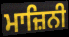
ਮਾਜ਼ਿਨੀ